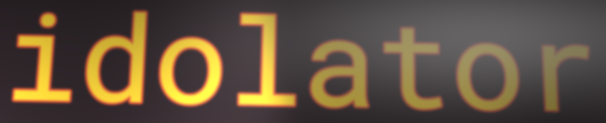
idolator